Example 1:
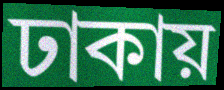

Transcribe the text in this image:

ঢাকায়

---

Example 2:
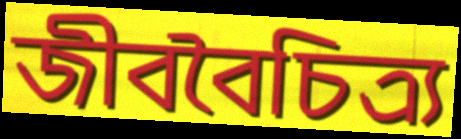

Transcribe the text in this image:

জীববৈচিত্র্য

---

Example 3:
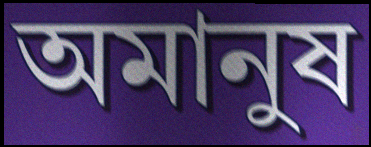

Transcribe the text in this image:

অমানুষ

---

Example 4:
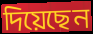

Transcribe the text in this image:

দিয়েছেন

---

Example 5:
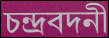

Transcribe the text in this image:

চন্দ্রবদনী